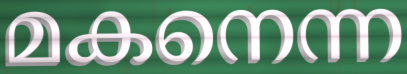
മകനെന്ന